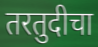
तरतुदीचा